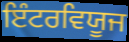
ਇੰਟਰਵਿਯੂਜ